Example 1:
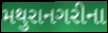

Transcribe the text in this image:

મથુરાનગરીના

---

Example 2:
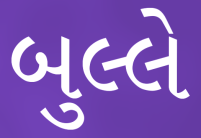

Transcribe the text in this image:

બુલ્લે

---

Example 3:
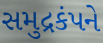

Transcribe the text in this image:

સમુદ્રકંપને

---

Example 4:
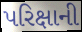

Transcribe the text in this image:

પરિક્ષાની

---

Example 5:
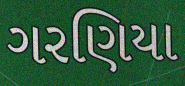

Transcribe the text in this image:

ગરણિયા